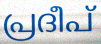
പ്രദീപ്